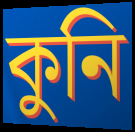
কুনি